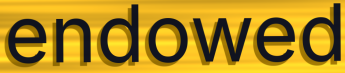
endowed